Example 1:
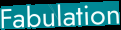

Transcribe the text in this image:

Fabulation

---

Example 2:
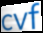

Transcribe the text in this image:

cvf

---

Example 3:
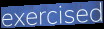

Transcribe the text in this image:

exercised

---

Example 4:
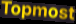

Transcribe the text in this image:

Topmost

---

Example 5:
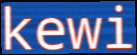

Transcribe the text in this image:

kewi